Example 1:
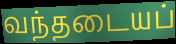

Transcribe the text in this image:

வந்தடையப்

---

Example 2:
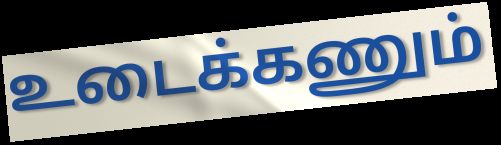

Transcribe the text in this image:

உடைக்கணும்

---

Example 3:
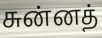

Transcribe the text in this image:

சுன்னத்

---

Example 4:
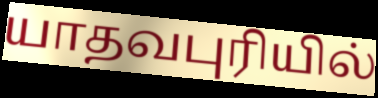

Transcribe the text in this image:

யாதவபுரியில்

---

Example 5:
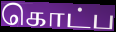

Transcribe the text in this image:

கொட்ப